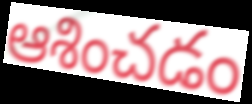
ఆశించడం